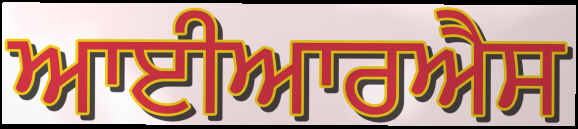
ਆਈਆਰਐਸ